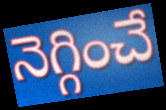
నెగ్గించే